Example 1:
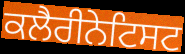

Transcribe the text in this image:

ਕਲੈਰੀਨੇਟਿਸਟ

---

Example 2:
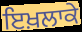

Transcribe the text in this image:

ਇਖ਼ਲਾਕੇ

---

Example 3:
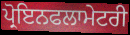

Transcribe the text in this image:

ਪ੍ਰੋਇਨਫਲਾਮੇਟਰੀ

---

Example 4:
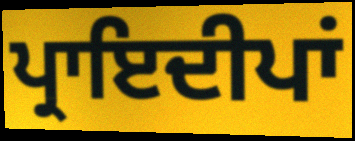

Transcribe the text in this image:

ਪ੍ਰਾਇਦੀਪਾਂ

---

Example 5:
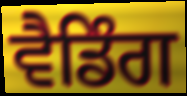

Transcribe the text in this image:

ਵੈਡਿੰਗ